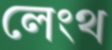
লেংথ